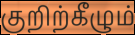
குறிற்கீழும்